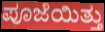
ಪೂಜೆಯಿತ್ತು